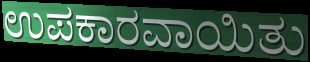
ಉಪಕಾರವಾಯಿತು